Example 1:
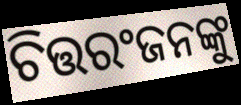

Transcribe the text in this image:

ଚିତ୍ତରଂଜନଙ୍କୁ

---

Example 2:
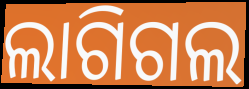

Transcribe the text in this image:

ଲାଗିଗଲ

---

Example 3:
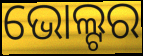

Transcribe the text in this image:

ଭୋଲ୍ଟର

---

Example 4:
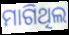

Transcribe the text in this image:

ମାଗିଥିଲ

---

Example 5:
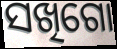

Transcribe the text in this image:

ସଖିଗୋ